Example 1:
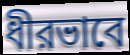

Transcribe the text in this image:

ধীরভাবে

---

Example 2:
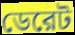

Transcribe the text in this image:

ডেরেট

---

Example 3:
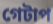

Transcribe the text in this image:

গেটাপ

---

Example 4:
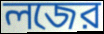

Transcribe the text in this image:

লজের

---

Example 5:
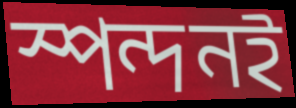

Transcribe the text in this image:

স্পন্দনই